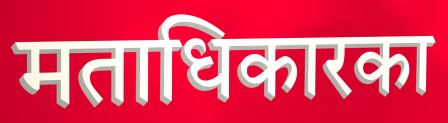
मताधिकारका